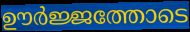
ഊർജ്ജത്തോടെ